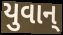
યુવાન્